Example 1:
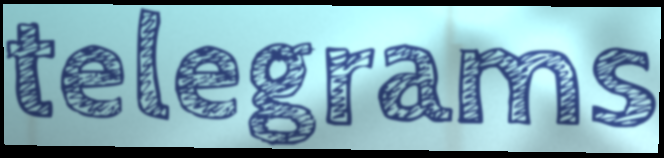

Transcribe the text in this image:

telegrams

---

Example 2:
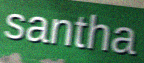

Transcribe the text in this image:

santha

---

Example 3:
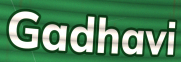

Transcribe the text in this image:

Gadhavi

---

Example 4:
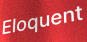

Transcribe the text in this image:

Eloquent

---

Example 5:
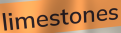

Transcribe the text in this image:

limestones